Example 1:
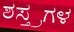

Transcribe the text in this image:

ಶಸ್ತ್ರಗಳ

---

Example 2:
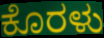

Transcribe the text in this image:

ಕೊರಳು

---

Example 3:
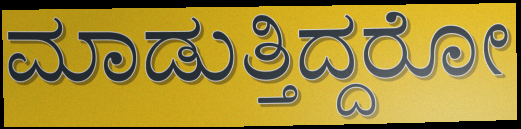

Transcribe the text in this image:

ಮಾಡುತ್ತಿದ್ದರೋ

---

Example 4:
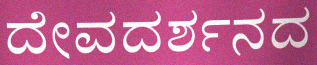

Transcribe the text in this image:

ದೇವದರ್ಶನದ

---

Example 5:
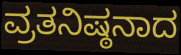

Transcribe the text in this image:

ವ್ರತನಿಷ್ಠನಾದ